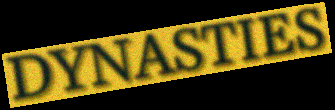
DYNASTIES